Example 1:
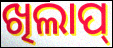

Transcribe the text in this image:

ଖିଲାପ୍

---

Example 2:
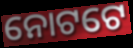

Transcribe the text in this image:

ନୋଟଟେ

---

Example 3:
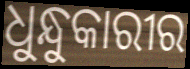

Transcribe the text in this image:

ଧୁନ୍ଧୁକାରୀର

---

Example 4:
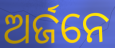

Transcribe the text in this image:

ଅର୍ଜନେ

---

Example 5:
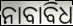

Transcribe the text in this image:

ନାବାବିଧ